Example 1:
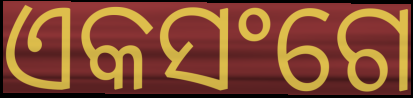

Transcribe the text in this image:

ଏକସଂଗେ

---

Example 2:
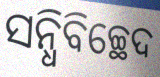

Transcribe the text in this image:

ସନ୍ଧିବିଚ୍ଛେଦ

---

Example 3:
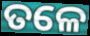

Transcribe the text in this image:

ତଳେ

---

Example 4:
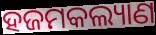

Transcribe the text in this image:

ହଜମକଲ୍ୟାଣ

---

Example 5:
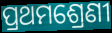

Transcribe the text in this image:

ପ୍ରଥମଶ୍ରେଣୀ